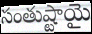
సంతుష్టాయై